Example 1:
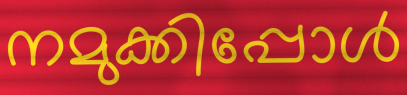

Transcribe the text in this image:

നമുക്കിപ്പോൾ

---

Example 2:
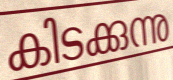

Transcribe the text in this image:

കിടക്കുന്നു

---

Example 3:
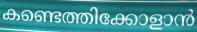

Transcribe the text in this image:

കണ്ടെത്തിക്കോളാൻ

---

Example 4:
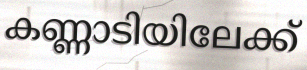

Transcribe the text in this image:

കണ്ണാടിയിലേക്ക്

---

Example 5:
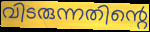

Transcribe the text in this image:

വിടരുന്നതിന്റെ